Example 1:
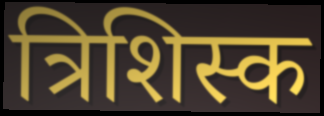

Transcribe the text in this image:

त्रिशिस्क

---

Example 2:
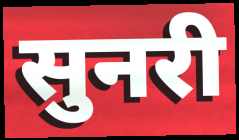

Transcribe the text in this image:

सुनरी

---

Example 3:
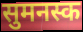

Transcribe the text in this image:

सुमनस्क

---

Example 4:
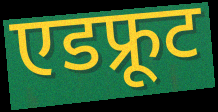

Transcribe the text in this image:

एडफ्रूट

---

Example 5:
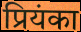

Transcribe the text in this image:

प्रियंका